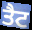
ਤੈਟ